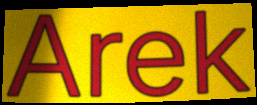
Arek